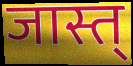
जास्त्